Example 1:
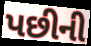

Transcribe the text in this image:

પછીની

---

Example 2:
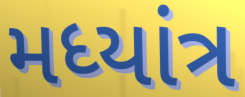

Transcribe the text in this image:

મધ્યાંત્ર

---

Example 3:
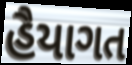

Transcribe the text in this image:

હૈયાગત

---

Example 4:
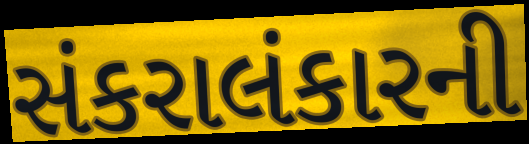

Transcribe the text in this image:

સંકરાલંકારની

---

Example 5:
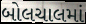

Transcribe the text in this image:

બોલચાલમાં